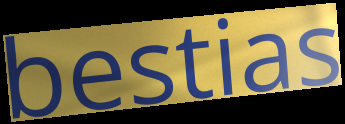
bestias